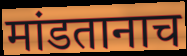
मांडतानाच